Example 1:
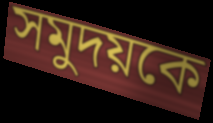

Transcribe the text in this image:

সমুদয়কে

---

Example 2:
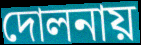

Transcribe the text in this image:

দোলনায়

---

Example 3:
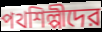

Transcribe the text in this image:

পথশিল্পীদের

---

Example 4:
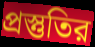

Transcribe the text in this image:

প্রস্তুতির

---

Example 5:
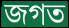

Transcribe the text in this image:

জগত